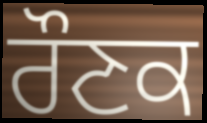
ਰੌਣਕ